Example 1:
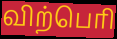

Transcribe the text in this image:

விற்பெரி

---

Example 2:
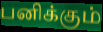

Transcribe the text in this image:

பனிக்கும்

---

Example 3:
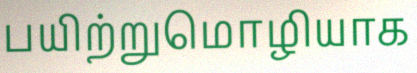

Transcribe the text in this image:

பயிற்றுமொழியாக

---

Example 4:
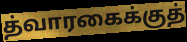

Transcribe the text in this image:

த்வாரகைக்குத்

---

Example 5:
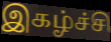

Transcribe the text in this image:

இகழ்ச்சி